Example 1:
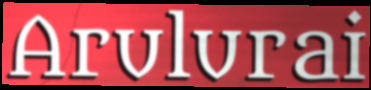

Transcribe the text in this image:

Arulurai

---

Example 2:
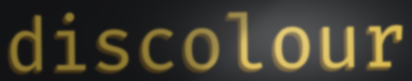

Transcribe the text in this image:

discolour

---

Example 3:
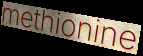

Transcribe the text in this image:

methionine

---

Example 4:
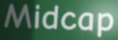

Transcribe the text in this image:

Midcap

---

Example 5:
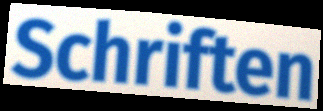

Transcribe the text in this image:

Schriften